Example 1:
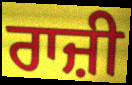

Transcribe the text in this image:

ਰਾਜ਼ੀ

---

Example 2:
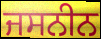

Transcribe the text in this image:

ਜਸਨੀਨ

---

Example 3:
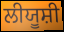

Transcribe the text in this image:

ਲੀਯੂਸ਼ੀ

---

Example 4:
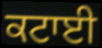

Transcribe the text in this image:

ਕਟਾਈ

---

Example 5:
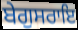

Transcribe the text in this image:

ਬੇਗੁਸਰਾਇ